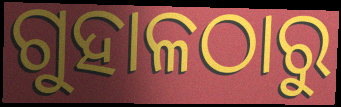
ଗୁହାଳଠାରୁ